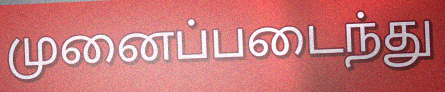
முனைப்படைந்து